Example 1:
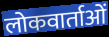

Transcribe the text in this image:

लोकवार्ताओं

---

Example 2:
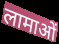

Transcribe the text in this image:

लामाओं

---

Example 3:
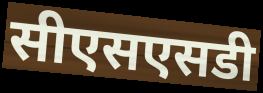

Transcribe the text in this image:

सीएसएसडी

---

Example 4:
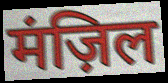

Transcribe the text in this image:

मंज़िल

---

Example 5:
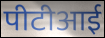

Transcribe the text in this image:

पीटीआई